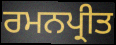
ਰਮਨਪ੍ਰੀਤ